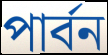
পাৰ্বন